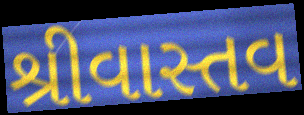
શ્રીવાસ્તવ